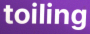
toiling